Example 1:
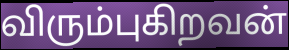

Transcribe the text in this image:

விரும்புகிறவன்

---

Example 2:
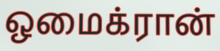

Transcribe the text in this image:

ஒமைக்ரான்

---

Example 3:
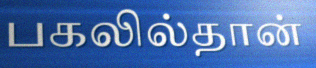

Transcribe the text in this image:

பகலில்தான்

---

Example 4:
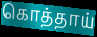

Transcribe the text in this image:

கொத்தாய்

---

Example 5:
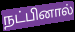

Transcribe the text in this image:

நட்பினால்